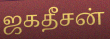
ஜகதீசன்